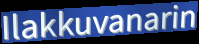
Ilakkuvanarin